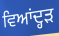
ਵਿਆਂਦ੍ਹੜ